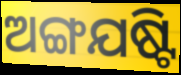
ଅଙ୍ଗଯଷ୍ଟି